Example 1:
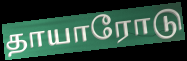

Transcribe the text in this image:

தாயாரோடு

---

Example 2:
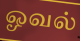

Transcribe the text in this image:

ஓவல்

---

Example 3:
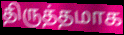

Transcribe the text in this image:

திருத்தமாக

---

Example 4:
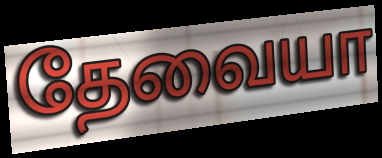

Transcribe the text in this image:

தேவையா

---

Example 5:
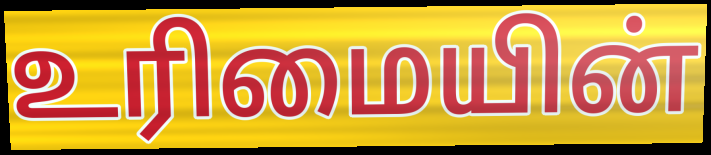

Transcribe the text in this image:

உரிமையின்